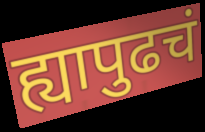
ह्यापुढचं